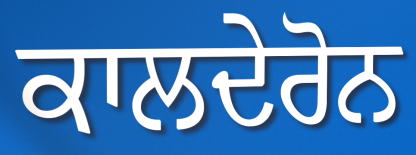
ਕਾਲਦੇਰੋਨ